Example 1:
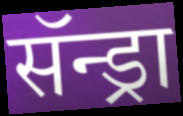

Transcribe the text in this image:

सॅन्ड्रा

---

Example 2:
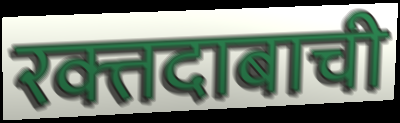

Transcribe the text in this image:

रक्तदाबाची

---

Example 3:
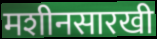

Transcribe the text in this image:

मशीनसारखी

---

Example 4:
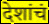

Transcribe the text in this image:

देशांचं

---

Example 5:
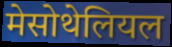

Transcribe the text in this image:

मेसोथेलियल